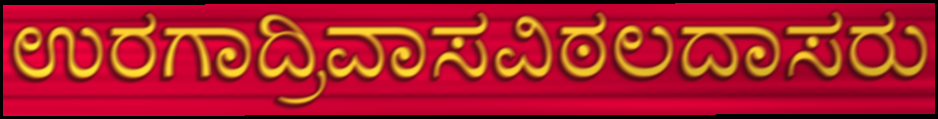
ಉರಗಾದ್ರಿವಾಸವಿಠಲದಾಸರು